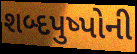
શબ્દપુષ્પોની